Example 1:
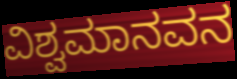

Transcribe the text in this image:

ವಿಶ್ವಮಾನವನ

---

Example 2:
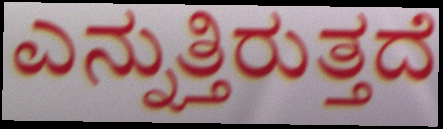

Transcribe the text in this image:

ಎನ್ನುತ್ತಿರುತ್ತದೆ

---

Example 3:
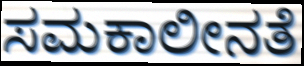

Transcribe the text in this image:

ಸಮಕಾಲೀನತೆ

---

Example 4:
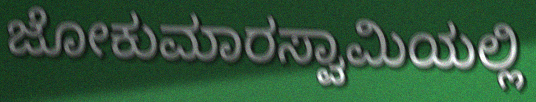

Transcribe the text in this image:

ಜೋಕುಮಾರಸ್ವಾಮಿಯಲ್ಲಿ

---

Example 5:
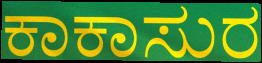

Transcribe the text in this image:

ಕಾಕಾಸುರ